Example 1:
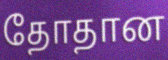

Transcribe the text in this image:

தோதான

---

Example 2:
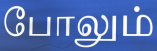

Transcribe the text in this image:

போலும்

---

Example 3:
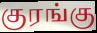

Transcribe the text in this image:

குரங்கு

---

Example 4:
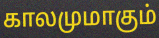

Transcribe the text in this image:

காலமுமாகும்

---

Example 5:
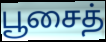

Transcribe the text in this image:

பூசைத்